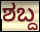
ಶಬ್ದ